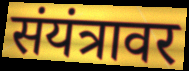
संयंत्रावर